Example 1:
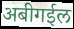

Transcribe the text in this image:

अबीगईल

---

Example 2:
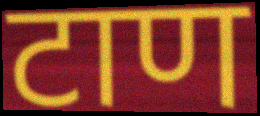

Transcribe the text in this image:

टाण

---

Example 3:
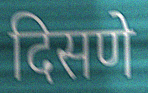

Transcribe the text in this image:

दिसणे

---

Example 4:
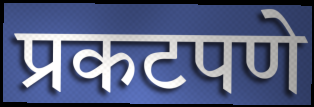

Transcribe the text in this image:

प्रकटपणे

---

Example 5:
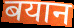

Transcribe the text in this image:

बयान